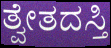
ತ್ವೇತದಸ್ತಿ